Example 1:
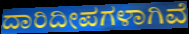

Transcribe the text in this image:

ದಾರಿದೀಪಗಳಾಗಿವೆ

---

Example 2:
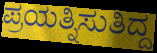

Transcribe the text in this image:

ಪ್ರಯತ್ನಿಸುತಿದ್ದ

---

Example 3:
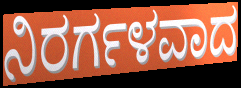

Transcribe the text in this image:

ನಿರರ್ಗಳವಾದ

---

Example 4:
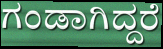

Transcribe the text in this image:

ಗಂಡಾಗಿದ್ದರೆ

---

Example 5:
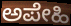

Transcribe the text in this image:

ಅಪೇಹಿ